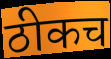
ठीकच